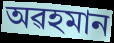
অৱহমান